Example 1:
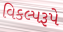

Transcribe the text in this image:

વિકલ્પરૂપે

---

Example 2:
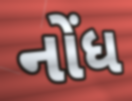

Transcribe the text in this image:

નોંધ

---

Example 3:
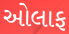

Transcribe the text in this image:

ઓલાફ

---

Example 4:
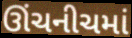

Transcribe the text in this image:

ઊંચનીચમાં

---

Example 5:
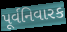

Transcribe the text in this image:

પૂર્વનિવારક